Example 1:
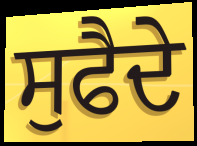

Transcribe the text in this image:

ਸੁਫੈਦੇ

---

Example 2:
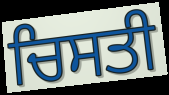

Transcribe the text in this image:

ਚਿਸਤੀ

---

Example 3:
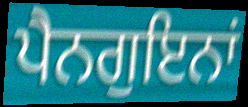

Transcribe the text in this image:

ਪੈਨਗੁਇਨਾਂ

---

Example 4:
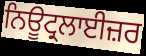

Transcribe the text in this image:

ਨਿਊਟ੍ਰਲਾਈਜ਼ਰ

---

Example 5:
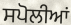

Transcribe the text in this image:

ਸਪੋਲੀਆਂ